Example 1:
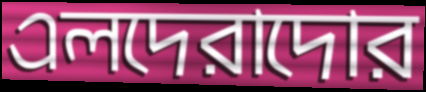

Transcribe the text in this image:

এলদেরাদোর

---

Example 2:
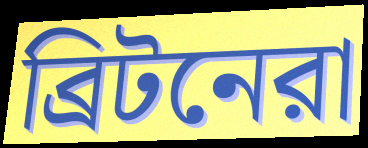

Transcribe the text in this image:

ব্রিটনেরা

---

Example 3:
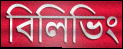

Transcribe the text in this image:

বিলিভিং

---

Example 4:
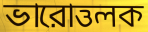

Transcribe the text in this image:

ভারোত্তলক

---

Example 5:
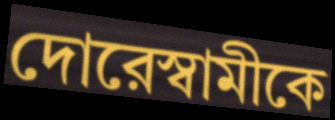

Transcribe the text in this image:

দোরেস্বামীকে